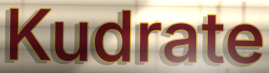
Kudrate